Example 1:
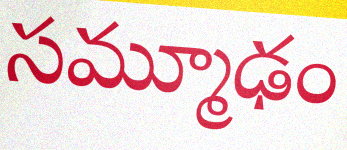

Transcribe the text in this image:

సమ్మూఢం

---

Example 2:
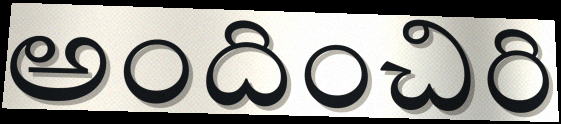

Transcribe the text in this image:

అందించిరి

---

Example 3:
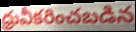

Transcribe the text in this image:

ధ్రువీకరించబడిన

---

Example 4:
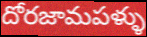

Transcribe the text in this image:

దోరజామపళ్ళు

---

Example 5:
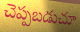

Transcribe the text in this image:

చెప్పబడుచూ